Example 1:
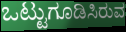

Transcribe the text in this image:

ಒಟ್ಟುಗೂಡಿಸಿರುವ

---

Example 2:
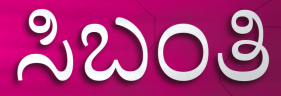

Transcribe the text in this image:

ಸಿಬಂತಿ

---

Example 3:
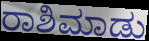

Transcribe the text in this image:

ರಾಶಿಮಾಡು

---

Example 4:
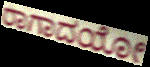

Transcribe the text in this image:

ರಾಗಾದಯೋ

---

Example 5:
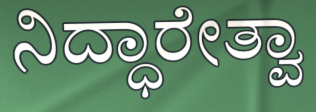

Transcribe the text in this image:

ನಿದ್ಧಾರೇತ್ವಾ